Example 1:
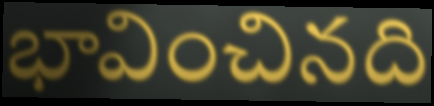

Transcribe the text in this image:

భావించినది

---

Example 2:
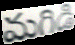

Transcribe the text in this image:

మగిడి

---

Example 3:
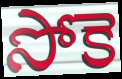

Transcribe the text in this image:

సోకె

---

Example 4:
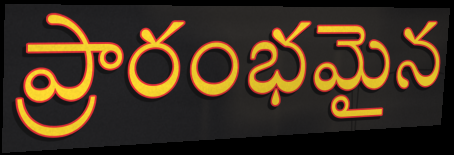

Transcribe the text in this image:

ప్రారంభమైన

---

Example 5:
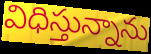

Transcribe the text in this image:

విధిస్తున్నాను